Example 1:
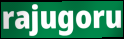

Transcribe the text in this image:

rajugoru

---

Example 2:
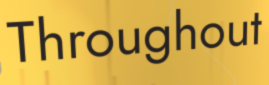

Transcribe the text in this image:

Throughout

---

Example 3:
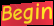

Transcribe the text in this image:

Begin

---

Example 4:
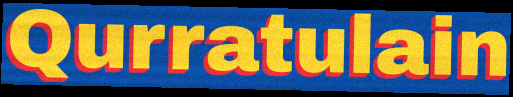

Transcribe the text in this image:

Qurratulain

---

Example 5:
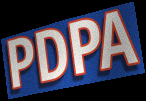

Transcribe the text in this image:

PDPA